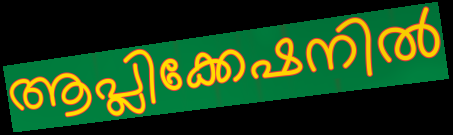
ആപ്ലിക്കേഷനിൽ